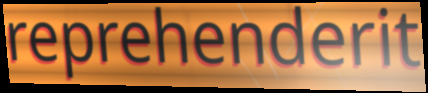
reprehenderit